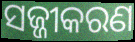
ସଜ୍ଜୀକରଣ